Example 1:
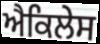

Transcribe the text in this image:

ਐਕਿਲੇਸ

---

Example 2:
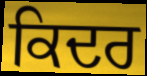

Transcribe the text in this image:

ਕਿਦਰ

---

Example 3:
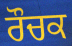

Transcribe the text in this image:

ਰੌਚਕ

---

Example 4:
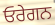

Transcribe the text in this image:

ਓਰੇਗਨ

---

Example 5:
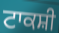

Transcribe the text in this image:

ਟਾਕਸ਼ੀ